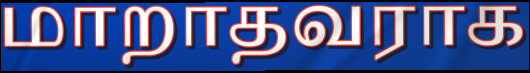
மாறாதவராக